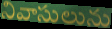
నివాసులును